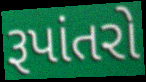
રૂપાંતરો